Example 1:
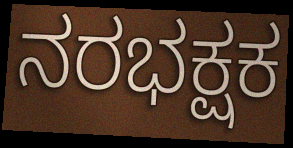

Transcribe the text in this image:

ನರಭಕ್ಷಕ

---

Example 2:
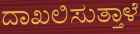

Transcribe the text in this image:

ದಾಖಲಿಸುತ್ತಾಳೆ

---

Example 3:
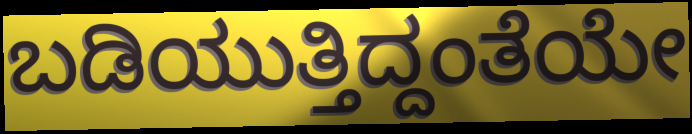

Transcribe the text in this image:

ಬಡಿಯುತ್ತಿದ್ದಂತೆಯೇ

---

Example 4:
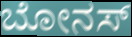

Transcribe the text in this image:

ಬೋನಸ್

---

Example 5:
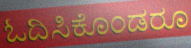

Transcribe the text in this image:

ಓದಿಸಿಕೊಂಡರೂ